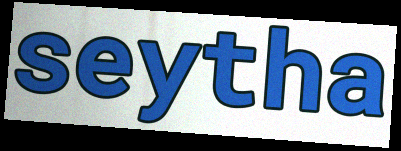
seytha